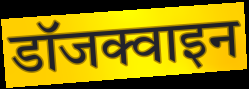
डॉजक्वाइन